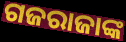
ଗଜରାଜାଙ୍କ